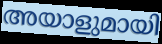
അയാളുമായി